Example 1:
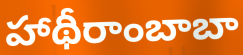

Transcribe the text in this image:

హాథీరాంబాబా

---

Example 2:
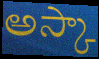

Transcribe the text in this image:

అస్కా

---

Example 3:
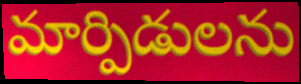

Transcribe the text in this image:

మార్పిడులను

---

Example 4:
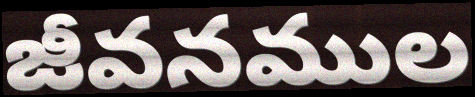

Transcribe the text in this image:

జీవనముల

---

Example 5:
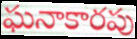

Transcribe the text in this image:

ఘనాకారపు